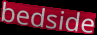
bedside